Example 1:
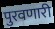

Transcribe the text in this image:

पुरवणारी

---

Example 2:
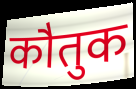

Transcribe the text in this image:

कौतुक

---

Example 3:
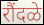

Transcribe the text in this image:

रौंदळे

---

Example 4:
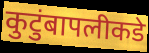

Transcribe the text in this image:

कुटुंबापलीकडे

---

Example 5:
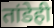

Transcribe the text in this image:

तांडेही